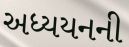
અધ્યયનની